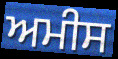
ਅਮੀਸ